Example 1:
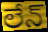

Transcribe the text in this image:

లేన్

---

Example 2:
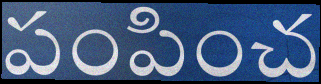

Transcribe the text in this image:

పంపించ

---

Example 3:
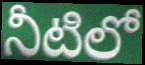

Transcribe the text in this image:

నీటిలో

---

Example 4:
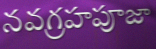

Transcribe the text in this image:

నవగ్రహపూజా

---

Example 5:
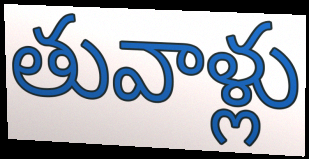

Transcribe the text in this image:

తువాళ్లు